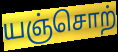
யஞ்சொற்